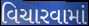
વિચારવામાં